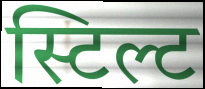
स्टिल्ट